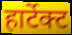
हार्टेक्ट